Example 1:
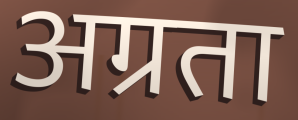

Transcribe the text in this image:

अग्रता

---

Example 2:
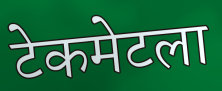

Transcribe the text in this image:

टेकमेटला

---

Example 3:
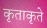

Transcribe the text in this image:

कृताकृते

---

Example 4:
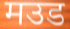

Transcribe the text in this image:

मउड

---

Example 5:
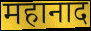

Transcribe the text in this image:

महानाद